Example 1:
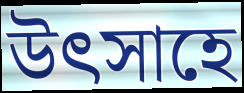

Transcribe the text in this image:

উত্‍সাহে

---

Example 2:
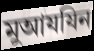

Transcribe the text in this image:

মুআযযিন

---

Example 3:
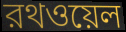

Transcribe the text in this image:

রথওয়েল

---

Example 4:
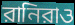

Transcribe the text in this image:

রানিরাও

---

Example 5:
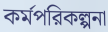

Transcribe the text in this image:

কর্মপরিকল্পনা